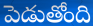
పెడుతోంది